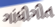
ગાંધીગીત